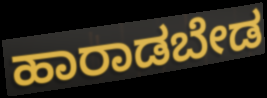
ಹಾರಾಡಬೇಡ